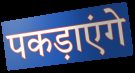
पकड़ाएंगे